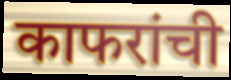
काफरांची